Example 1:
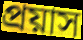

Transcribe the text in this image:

প্ৰয়াস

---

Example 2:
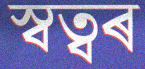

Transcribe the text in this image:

স্বত্বৰ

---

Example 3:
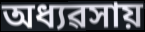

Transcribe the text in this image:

অধ্যৱসায়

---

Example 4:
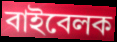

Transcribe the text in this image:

বাইবেলক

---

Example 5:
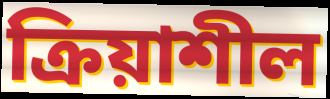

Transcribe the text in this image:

ক্ৰিয়াশীল